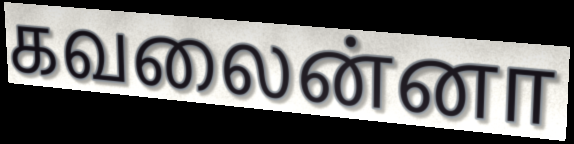
கவலைன்னா